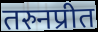
तरुनप्रीत